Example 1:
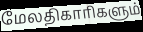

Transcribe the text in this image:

மேலதிகாரிகளும்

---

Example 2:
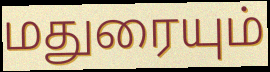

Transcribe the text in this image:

மதுரையும்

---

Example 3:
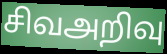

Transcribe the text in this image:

சிவஅறிவு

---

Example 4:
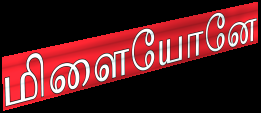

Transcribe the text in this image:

மிளையோனே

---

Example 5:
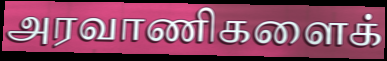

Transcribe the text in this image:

அரவாணிகளைக்